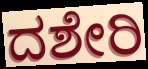
ದಶೇರಿ